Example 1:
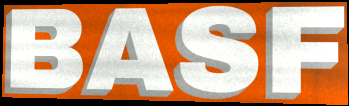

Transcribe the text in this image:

BASF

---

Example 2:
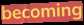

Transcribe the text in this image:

becoming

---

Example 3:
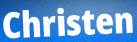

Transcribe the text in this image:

Christen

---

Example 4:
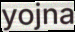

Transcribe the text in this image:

yojna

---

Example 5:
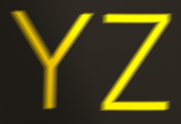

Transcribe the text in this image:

YZ